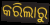
କରିଲାରୁ